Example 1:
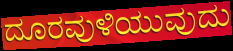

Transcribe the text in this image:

ದೂರವುಳಿಯುವುದು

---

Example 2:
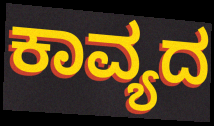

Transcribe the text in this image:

ಕಾವ್ಯದ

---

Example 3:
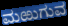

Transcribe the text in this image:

ಮಱುಗುವ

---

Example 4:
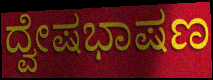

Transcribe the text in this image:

ದ್ವೇಷಭಾಷಣ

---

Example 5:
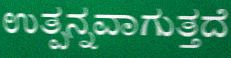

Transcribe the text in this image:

ಉತ್ಪನ್ನವಾಗುತ್ತದೆ